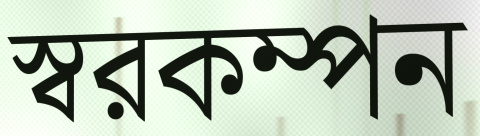
স্বরকম্পন